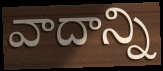
వాదాన్ని